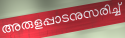
അരുളപ്പാടനുസരിച്ച്